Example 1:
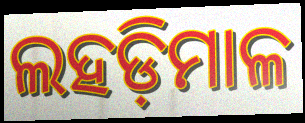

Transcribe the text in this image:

ଲହଡ଼ିମାଳ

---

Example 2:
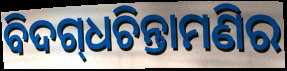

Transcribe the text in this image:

ବିଦଗ୍‌ଧଚିନ୍ତାମଣିର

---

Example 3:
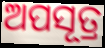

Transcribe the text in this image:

ଅପସୂତ୍ର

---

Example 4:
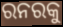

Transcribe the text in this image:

ରନରକୁ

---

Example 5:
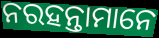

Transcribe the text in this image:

ନରହନ୍ତାମାନେ